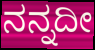
ನನ್ನದೀ